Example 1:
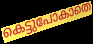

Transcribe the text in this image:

കെട്ടുപോകാതെ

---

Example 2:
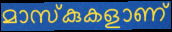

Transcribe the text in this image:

മാസ്കുകളാണ്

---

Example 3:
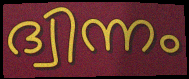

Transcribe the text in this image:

ദ്വിന്നം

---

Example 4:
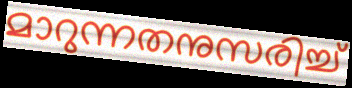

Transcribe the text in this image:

മാറുന്നതനുസരിച്ച്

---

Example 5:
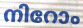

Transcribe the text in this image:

നിറോം